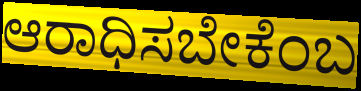
ಆರಾಧಿಸಬೇಕೆಂಬ